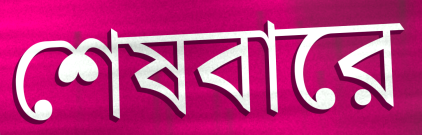
শেষবারে